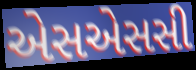
એસએસસી